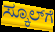
ಸ್ಕೂಲ್‌ಗೆ